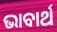
ଭାବାର୍ଥ